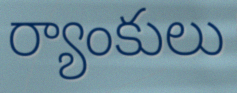
ర్యాంకులు